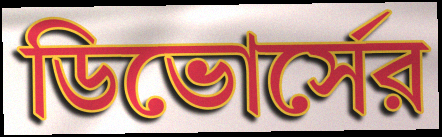
ডিভোর্সের